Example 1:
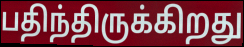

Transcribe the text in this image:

பதிந்திருக்கிறது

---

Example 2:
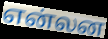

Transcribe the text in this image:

என்லன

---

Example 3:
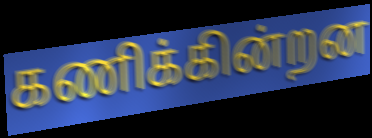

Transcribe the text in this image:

கணிக்கின்றன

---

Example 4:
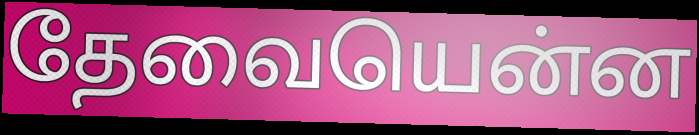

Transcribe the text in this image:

தேவையென்ன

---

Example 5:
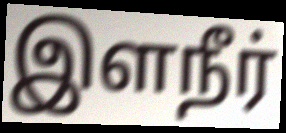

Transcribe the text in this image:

இளநீர்